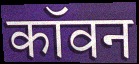
कॉवन